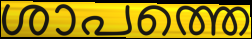
ശാപത്തെ